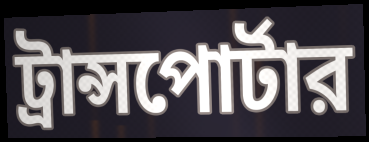
ট্রান্সপোর্টার